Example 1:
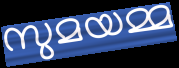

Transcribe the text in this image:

സുമയമ്മ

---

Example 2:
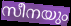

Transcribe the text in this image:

സീനയും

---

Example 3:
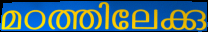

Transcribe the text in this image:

മഠത്തിലേക്കു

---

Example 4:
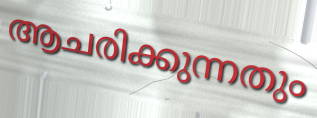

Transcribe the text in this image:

ആചരിക്കുന്നതും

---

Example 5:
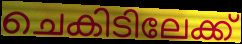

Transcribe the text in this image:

ചെകിടിലേക്ക്